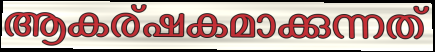
ആകര്ഷകമാക്കുന്നത്